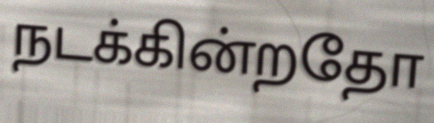
நடக்கின்றதோ